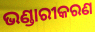
ଭଣ୍ଡାରୀକରଣ